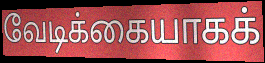
வேடிக்கையாகக்